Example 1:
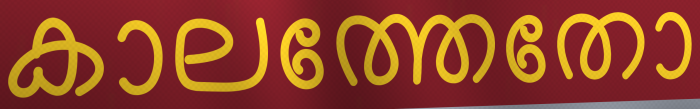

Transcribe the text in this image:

കാലത്തേതോ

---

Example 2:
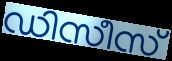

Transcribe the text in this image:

ഡിസീസ്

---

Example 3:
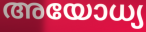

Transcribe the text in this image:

അയോധ്യ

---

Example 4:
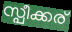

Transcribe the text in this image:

സ്പീക്കര്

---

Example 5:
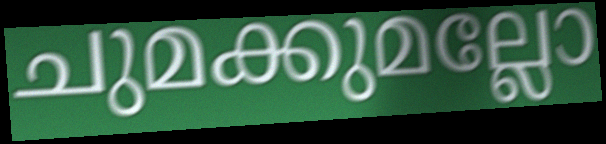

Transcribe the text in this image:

ചുമക്കുമല്ലോ